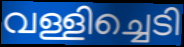
വള്ളിച്ചെടി